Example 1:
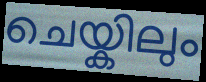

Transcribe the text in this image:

ചെയ്കിലും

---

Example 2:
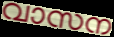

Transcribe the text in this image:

വാസന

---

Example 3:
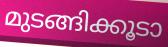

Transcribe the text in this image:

മുടങ്ങിക്കൂടാ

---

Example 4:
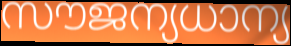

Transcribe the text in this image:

സൗജന്യധാന്യ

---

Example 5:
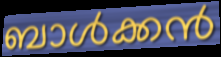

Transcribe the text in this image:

ബാൾക്കൻ